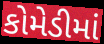
કોમેડીમાં